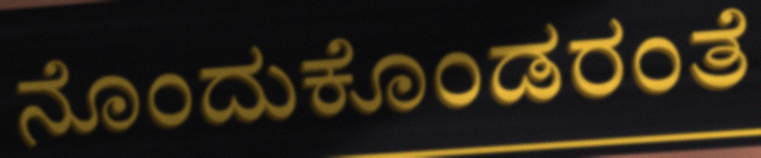
ನೊಂದುಕೊಂಡರಂತೆ